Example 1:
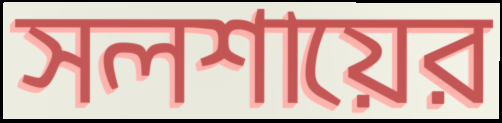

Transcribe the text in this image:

সলশায়ের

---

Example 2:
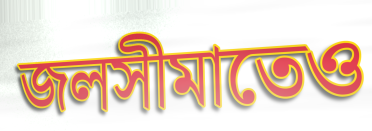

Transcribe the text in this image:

জলসীমাতেও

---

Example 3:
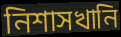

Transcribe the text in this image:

নিশাসখানি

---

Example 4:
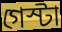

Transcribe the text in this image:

গেস্টা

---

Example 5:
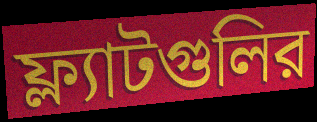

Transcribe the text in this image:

ফ্ল্যাটগুলির